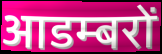
आडम्बरों